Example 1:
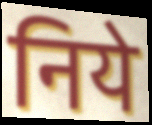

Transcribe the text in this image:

निये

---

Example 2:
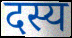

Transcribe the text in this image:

दस्य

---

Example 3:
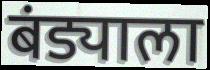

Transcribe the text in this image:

बंड्याला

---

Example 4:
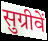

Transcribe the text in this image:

सुग्रीवें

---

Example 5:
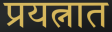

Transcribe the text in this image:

प्रयत्नात